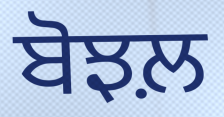
ਬੋਝਲ਼